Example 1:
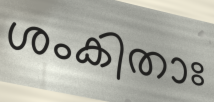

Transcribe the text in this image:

ശംകിതാഃ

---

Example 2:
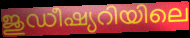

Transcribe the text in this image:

ജുഡീഷ്യറിയിലെ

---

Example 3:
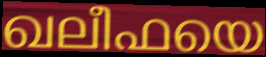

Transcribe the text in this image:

ഖലീഫയെ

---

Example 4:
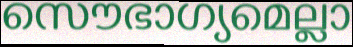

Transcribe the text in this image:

സൌഭാഗ്യമെല്ലാ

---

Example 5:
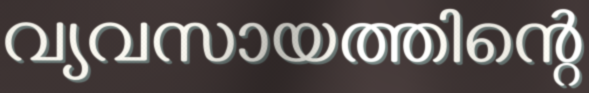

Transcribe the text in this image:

വ്യവസായത്തിന്റെ